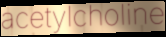
acetylcholine